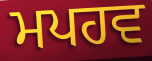
ਮਪਹਵ